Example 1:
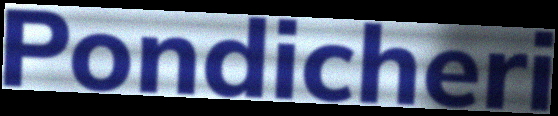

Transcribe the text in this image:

Pondicheri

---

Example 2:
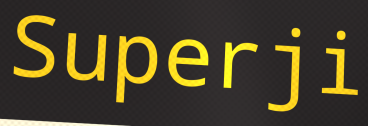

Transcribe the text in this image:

Superji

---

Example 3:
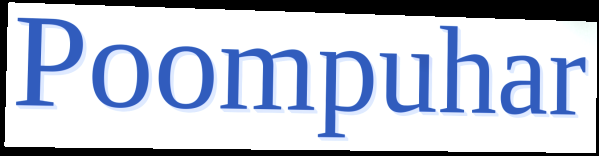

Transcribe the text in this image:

Poompuhar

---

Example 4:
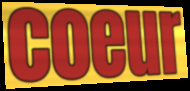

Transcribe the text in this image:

coeur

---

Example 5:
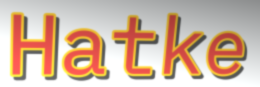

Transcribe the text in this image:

Hatke